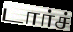
டார்ச்